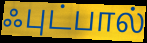
ஃபுட்பால்